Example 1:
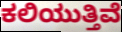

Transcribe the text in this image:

ಕಲಿಯುತ್ತಿವೆ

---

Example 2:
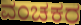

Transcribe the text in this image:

ವಂಚಕರ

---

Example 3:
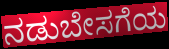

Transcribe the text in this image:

ನಡುಬೇಸಗೆಯ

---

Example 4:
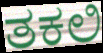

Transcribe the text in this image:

ತಕಲಿ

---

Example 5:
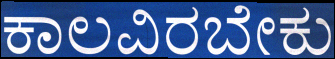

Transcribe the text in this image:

ಕಾಲವಿರಬೇಕು